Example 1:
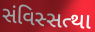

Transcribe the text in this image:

સંવિસ્સત્થા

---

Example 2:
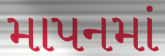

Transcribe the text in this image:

માપનમાં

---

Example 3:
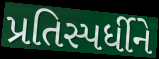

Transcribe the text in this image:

પ્રતિસ્પર્ધીને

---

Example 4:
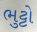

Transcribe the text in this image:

ભુટ્ટો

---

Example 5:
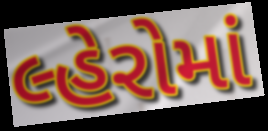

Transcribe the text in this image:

લ્હેરોમાં